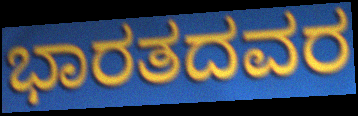
ಭಾರತದವರ